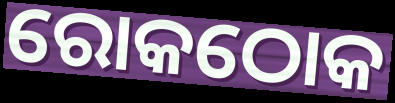
ରୋକଠୋକ